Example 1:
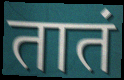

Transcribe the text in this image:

तातं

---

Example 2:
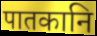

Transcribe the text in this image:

पातकानि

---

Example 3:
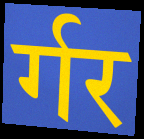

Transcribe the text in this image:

र्गर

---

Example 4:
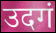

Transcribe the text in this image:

उदगं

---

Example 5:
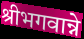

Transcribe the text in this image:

श्रीभगवान्ने